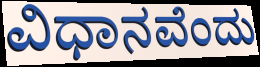
ವಿಧಾನವೆಂದು